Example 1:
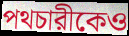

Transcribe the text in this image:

পথচারীকেও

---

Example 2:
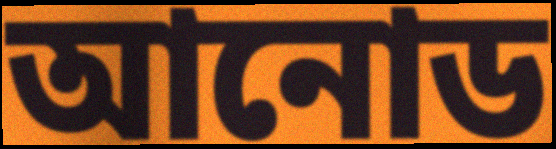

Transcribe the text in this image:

আনোড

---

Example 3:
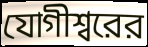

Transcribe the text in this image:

যোগীশ্বরের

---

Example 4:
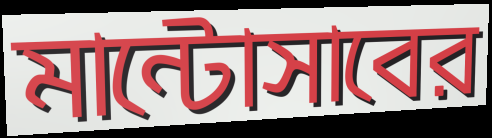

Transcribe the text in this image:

মান্টোসাবের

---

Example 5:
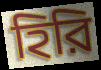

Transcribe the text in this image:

হিরি